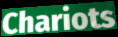
Chariots